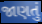
જાણતું